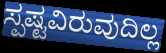
ಸ್ಪಷ್ಟವಿರುವುದಿಲ್ಲ